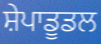
ਸ਼ੇਪਾਡੂਡਲ